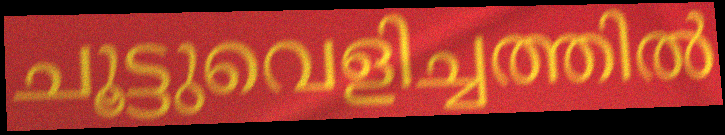
ചൂട്ടുവെളിച്ചത്തിൽ